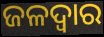
ଜଳଦ୍ୱାର